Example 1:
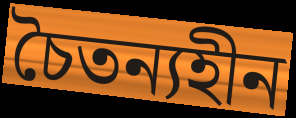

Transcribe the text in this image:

চৈতন্যহীন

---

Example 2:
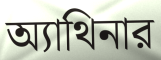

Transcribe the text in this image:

অ্যাথিনার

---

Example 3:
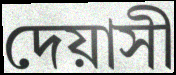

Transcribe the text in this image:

দেয়াসী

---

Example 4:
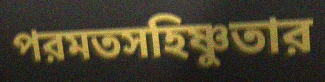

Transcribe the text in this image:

পরমতসহিষ্ণুতার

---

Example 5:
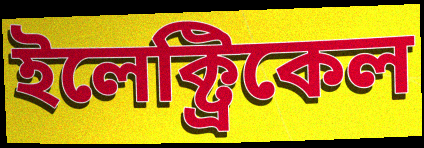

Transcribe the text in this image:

ইলেক্ট্রিকেল